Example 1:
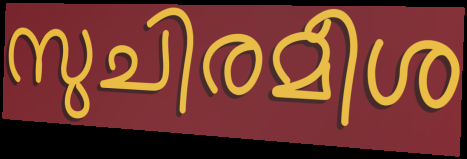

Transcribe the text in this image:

സുചിരമീശ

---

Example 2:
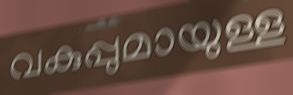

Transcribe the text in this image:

വകുപ്പുമായുള്ള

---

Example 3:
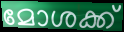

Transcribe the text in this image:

മോശക്ക്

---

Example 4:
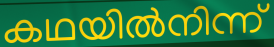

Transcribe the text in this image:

കഥയിൽനിന്ന്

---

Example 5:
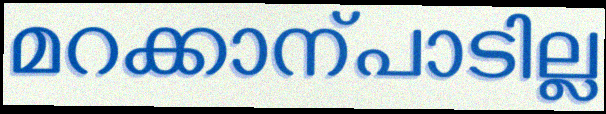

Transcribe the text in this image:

മറക്കാന്പാടില്ല